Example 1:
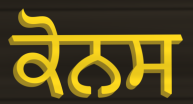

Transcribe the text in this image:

ਕੋਨਸ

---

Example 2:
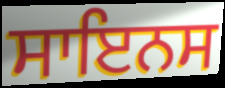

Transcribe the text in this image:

ਸਾਇਨਸ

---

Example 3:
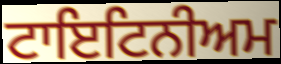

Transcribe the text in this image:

ਟਾਇਟਿਨੀਅਮ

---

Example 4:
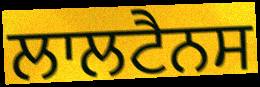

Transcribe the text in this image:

ਲਾਲਟੈਨਸ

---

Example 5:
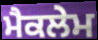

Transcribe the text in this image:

ਮੈਕਲੇਮ